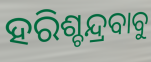
ହରିଶ୍ଚନ୍ଦ୍ରବାବୁ